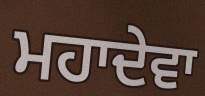
ਮਹਾਦੇਵਾ